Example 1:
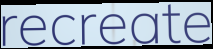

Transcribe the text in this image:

recreate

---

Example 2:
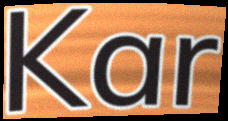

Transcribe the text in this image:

Kar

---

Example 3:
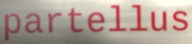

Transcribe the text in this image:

partellus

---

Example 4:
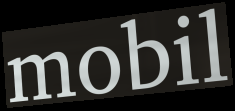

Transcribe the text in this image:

mobil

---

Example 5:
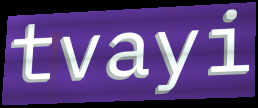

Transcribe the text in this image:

tvayi